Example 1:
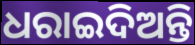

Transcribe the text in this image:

ଧରାଇଦିଅନ୍ତି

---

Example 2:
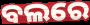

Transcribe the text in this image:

ବଲରେ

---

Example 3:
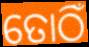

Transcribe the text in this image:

ତୋଠିଁ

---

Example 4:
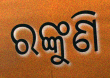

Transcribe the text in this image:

ରଙ୍କୁଣି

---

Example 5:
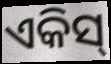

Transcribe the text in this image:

ଏକିସ୍